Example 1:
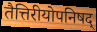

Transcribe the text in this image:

तैत्तिरीयोपनिषद्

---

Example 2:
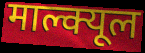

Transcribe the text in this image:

माल्क्यूल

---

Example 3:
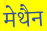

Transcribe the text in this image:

मेथैन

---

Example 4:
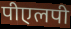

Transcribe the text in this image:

पीएलपी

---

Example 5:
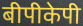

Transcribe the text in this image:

बीपीकेपी